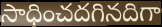
సాధించదగినదిగా